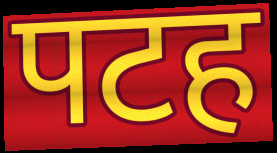
पटह